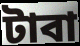
টাবা